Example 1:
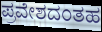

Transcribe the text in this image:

ಪ್ರವೇಶದಂತಹ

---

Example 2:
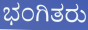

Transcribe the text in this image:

ಭಂಗಿತರು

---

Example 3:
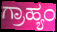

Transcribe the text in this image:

ಗ್ರಾಹ್ಯಂ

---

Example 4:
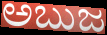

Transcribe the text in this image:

ಅಬುಜ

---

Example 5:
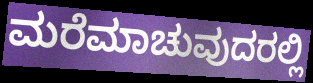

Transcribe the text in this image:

ಮರೆಮಾಚುವುದರಲ್ಲಿ